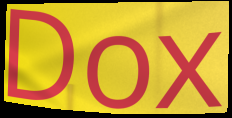
Dox